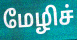
மேழிச்